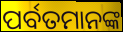
ପର୍ବତମାନଙ୍କ